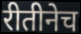
रीतीनेच